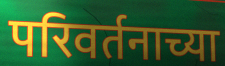
परिवर्तनाच्या